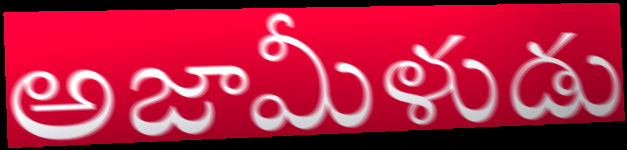
అజామీళుడు